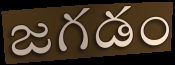
జగడం